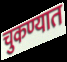
चुकण्यात